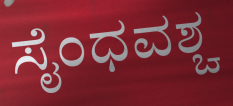
ಸೈಂಧವಶ್ಚ